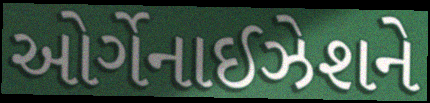
ઓર્ગેનાઈઝેશને